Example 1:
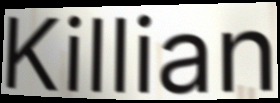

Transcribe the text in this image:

Killian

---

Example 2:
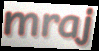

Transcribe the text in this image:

mraj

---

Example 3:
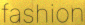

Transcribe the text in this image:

fashion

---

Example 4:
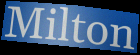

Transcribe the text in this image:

Milton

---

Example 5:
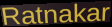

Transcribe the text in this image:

Ratnakar